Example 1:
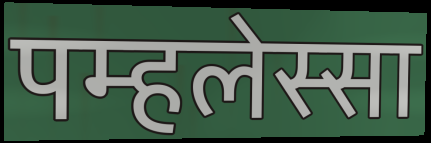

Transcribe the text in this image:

पम्हलेस्सा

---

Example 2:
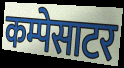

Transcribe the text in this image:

कम्पेसाटर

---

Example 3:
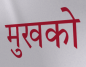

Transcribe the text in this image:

मुखको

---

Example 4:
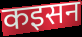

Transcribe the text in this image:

कइसन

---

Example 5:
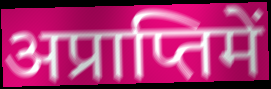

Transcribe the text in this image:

अप्राप्तिमें